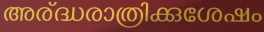
അര്ദ്ധരാത്രിക്കുശേഷം